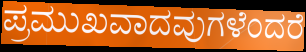
ಪ್ರಮುಖವಾದವುಗಳೆಂದರೆ